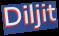
Diljit